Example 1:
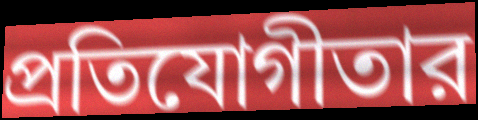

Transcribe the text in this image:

প্রতিযোগীতার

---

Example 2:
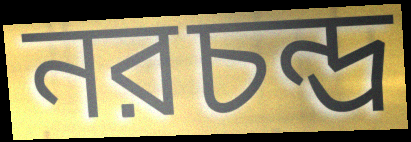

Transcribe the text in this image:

নরচন্দ্র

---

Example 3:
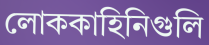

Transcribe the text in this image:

লোককাহিনিগুলি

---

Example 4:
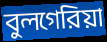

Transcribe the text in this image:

বুলগেরিয়া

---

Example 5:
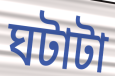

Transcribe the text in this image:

ঘটাটা